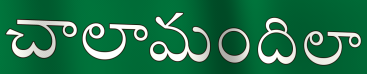
చాలామందిలా